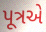
પૂત્રએ